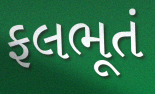
ફલભૂતં